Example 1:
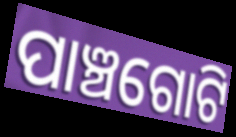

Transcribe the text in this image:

ପାଞ୍ଚଗୋଟି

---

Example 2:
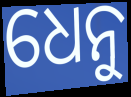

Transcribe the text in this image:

ଧେନୁ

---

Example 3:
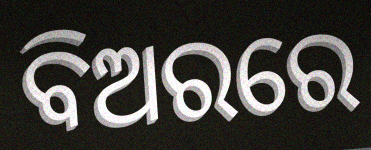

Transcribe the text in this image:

ବିଅରରେ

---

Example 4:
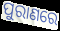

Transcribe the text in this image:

ପୁରାଣରେ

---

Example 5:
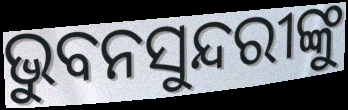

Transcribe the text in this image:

ଭୁବନସୁନ୍ଦରୀଙ୍କୁ